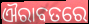
ଐରାବତରେ